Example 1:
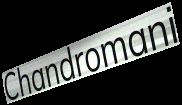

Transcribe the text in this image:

Chandromani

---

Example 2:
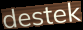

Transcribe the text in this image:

destek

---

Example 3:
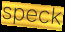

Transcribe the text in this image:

speck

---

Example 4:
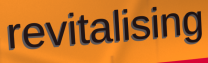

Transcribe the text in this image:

revitalising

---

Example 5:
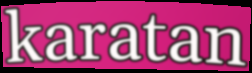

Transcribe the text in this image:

karatan